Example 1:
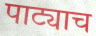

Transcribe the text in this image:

पाट्याच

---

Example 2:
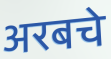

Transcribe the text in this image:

अरबचे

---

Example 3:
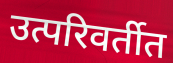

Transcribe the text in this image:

उत्परिवर्तीत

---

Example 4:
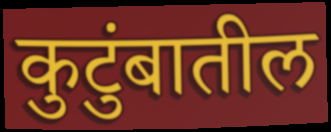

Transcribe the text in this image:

कुटुंबातील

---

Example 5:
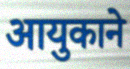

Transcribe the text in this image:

आयुकाने